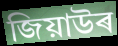
জিয়াউৰ